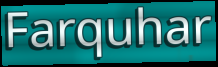
Farquhar